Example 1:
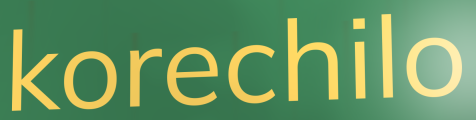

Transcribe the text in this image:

korechilo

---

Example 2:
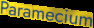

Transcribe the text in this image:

Paramecium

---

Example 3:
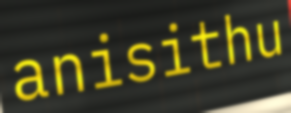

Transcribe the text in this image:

anisithu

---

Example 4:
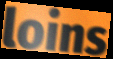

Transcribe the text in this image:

loins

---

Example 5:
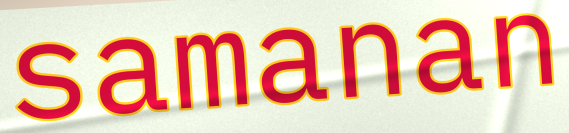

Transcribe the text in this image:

samanan